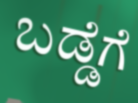
ಬಡ್ಡೆಗೆ